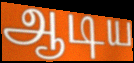
ஆடிய